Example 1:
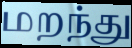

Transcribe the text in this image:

மறந்து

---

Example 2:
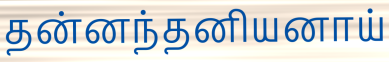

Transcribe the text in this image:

தன்னந்தனியனாய்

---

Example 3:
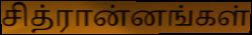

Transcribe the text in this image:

சித்ரான்னங்கள்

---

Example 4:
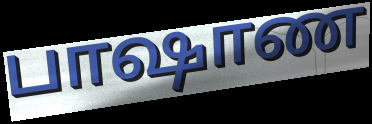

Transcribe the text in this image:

பாஷாண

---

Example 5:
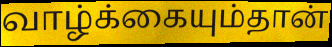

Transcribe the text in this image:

வாழ்க்கையும்தான்